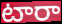
టారా